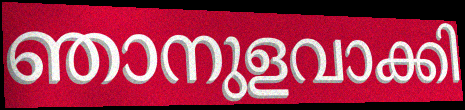
ഞാനുളവാക്കി